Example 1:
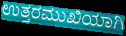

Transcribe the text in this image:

ಉತ್ತರಮುಖಿಯಾಗಿ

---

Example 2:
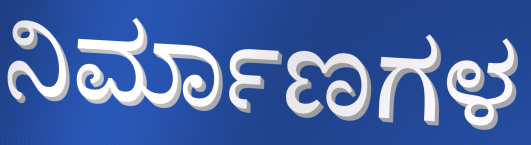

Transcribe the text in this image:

ನಿರ್ಮಾಣಗಳ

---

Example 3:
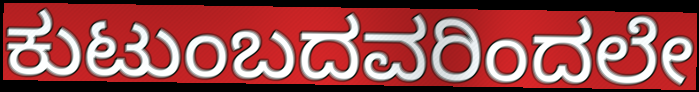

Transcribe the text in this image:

ಕುಟುಂಬದವರಿಂದಲೇ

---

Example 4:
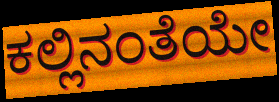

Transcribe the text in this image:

ಕಲ್ಲಿನಂತೆಯೇ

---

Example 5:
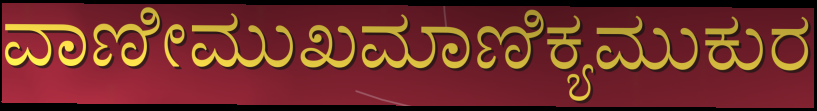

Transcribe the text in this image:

ವಾಣೀಮುಖಮಾಣಿಕ್ಯಮುಕುರ